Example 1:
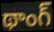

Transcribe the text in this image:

థాంగ్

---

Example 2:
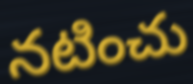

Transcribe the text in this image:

నటించు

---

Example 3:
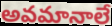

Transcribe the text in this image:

అవమానాలే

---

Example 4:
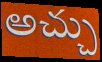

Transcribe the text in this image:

అచ్చు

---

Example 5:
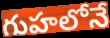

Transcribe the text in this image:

గుహలోనే